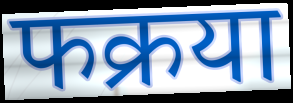
फक्रया